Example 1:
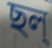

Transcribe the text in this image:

ছল্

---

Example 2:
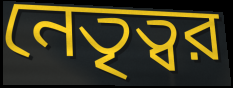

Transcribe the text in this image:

নেতৃত্বর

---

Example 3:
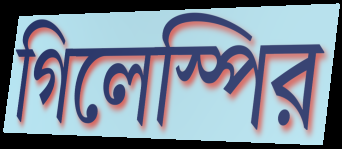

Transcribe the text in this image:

গিলেস্পির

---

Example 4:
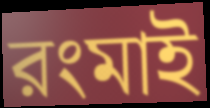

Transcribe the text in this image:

রংমাই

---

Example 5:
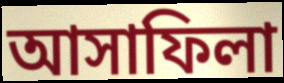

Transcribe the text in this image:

আসাফিলা